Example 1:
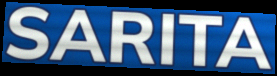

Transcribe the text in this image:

SARITA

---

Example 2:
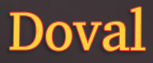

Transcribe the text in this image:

Doval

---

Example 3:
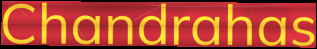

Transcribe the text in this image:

Chandrahas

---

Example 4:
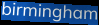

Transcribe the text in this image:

birmingham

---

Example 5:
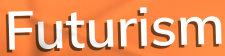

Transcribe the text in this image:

Futurism